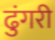
ढुंगरी